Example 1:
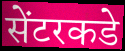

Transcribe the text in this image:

सेंटरकडे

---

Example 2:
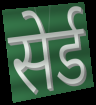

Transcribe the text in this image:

सेर्ड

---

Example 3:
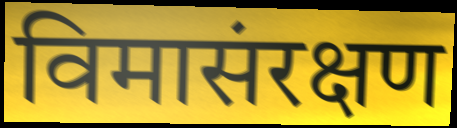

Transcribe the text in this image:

विमासंरक्षण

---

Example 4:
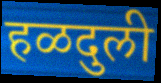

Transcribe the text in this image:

हळदुली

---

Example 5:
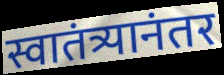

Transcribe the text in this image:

स्वातंत्र्यानंतर